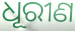
ଧୂରୀଣ